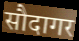
सौदागर